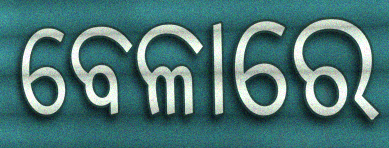
ବେଳାରେ